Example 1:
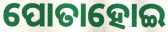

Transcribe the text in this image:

ପୋତାହୋଇ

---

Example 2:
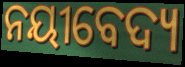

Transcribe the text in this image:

ନୟୀବେଦ୍ୟ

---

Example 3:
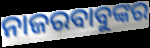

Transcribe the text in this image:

ନାଜରବାବୁଙ୍କର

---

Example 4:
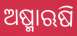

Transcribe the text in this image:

ଅଷ୍ମାଋଷି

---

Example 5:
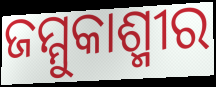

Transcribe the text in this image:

ଜମ୍ମୁକାଶ୍ମୀର